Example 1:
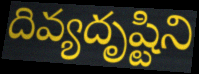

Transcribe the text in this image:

దివ్యదృష్టిని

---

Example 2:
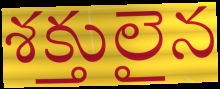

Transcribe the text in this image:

శక్తులైన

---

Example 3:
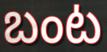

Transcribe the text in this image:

బంట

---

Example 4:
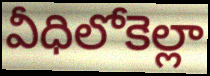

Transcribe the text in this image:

వీధిలోకెల్లా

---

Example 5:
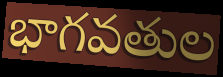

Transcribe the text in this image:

భాగవతుల